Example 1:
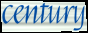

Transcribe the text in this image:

century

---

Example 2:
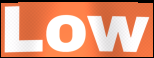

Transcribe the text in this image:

Low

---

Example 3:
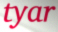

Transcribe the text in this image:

tyar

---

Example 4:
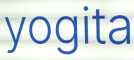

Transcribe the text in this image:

yogita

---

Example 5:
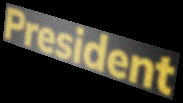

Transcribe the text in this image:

President